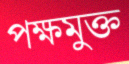
পক্ষমুক্ত